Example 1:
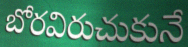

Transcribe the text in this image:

బోరవిరుచుకునే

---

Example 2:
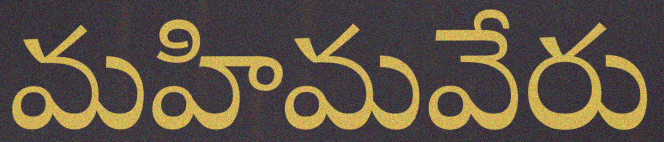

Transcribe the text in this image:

మహిమవేరు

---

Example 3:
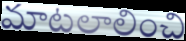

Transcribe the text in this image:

మాటలాలించి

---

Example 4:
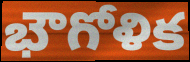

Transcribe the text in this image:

భౌగోళిక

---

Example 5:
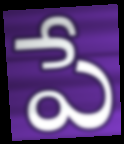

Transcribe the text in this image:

పే